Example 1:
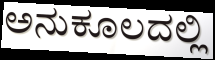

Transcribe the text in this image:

ಅನುಕೂಲದಲ್ಲಿ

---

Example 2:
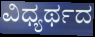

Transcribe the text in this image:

ವಿಧ್ಯರ್ಥದ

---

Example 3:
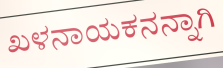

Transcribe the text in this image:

ಖಳನಾಯಕನನ್ನಾಗಿ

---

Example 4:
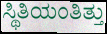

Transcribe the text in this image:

ಸ್ಥಿತಿಯಂತಿತ್ತು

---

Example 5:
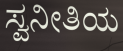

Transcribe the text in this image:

ಸ್ವನೀತಿಯ